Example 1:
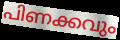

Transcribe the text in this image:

പിണക്കവും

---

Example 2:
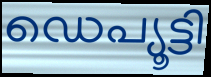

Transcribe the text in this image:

ഡെപ്യൂട്ടി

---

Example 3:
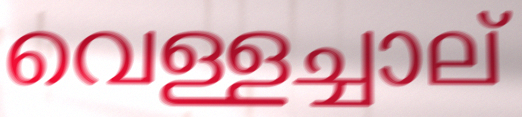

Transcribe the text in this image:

വെള്ളച്ചാല്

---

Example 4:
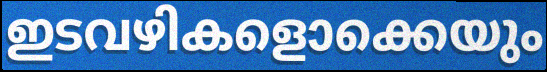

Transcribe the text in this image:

ഇടവഴികളൊക്കെയും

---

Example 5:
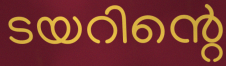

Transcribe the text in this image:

ടയറിന്റെ